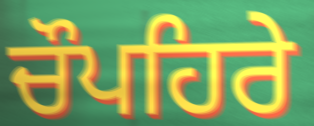
ਚੌਪਹਿਰੇ